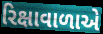
રિક્ષાવાળાએ